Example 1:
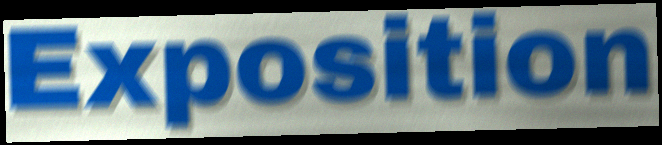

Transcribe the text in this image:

Exposition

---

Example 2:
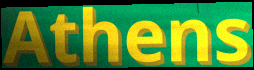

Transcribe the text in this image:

Athens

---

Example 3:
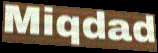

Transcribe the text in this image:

Miqdad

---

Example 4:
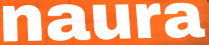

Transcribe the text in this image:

naura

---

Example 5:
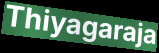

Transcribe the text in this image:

Thiyagaraja